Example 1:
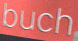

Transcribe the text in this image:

buch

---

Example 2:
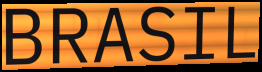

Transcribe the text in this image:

BRASIL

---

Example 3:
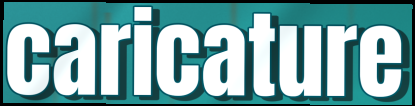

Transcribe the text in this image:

caricature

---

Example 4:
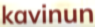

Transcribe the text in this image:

kavinun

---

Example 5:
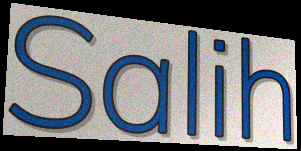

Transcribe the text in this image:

Salih